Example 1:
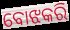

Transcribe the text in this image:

ବୋଝକରି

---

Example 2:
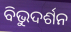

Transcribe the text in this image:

ବିଭୁଦର୍ଶନ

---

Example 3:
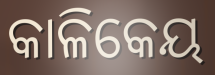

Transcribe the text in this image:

କାଳିକେୟ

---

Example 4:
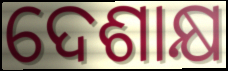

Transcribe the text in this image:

ଦେଶାକ୍ଷ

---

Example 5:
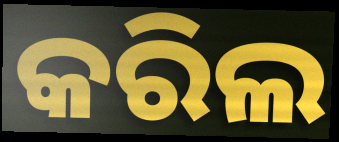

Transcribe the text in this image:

କରିଲ